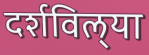
दर्शविल्या